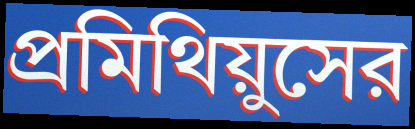
প্রমিথিয়ুসের